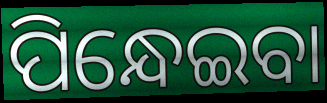
ପିନ୍ଧେଇବା